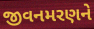
જીવનમરણને